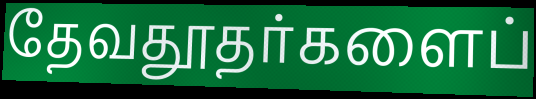
தேவதூதர்களைப்